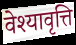
वेश्यावृत्ति